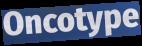
Oncotype